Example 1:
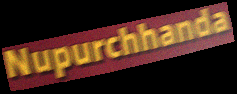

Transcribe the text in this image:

Nupurchhanda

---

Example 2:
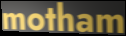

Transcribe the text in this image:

motham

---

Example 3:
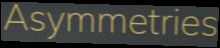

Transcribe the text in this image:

Asymmetries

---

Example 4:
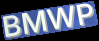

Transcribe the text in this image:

BMWP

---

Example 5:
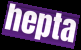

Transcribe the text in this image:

hepta